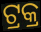
ଟ୍ରକ୍ର